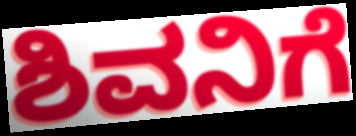
ಶಿವನಿಗೆ